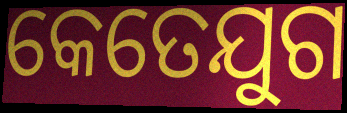
କେତେଯୁଗ